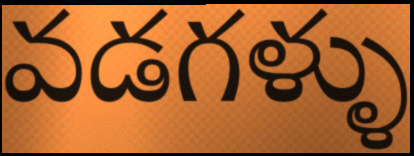
వడగళ్ళు